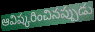
ఆవిష్కరించినప్పుడు